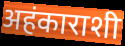
अहंकाराशी